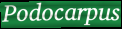
Podocarpus